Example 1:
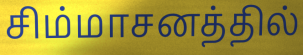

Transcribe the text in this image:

சிம்மாசனத்தில்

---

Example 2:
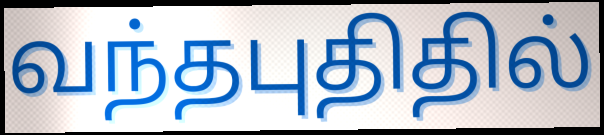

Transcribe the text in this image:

வந்தபுதிதில்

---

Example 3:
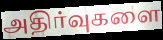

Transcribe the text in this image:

அதிர்வுகளை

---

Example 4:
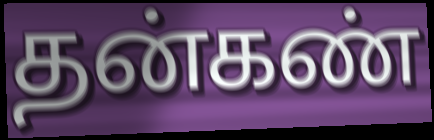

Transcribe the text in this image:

தன்கண்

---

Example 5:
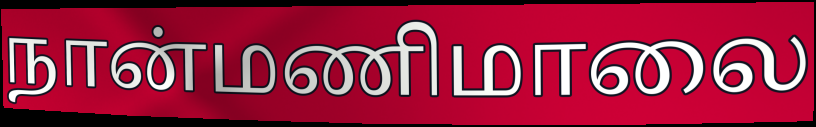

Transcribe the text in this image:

நான்மணிமாலை